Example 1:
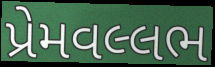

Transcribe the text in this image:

પ્રેમવલ્લભ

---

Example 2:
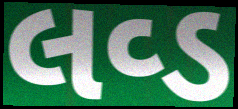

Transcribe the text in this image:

લવ્ડ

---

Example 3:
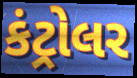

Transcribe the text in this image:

કંટ્રોલર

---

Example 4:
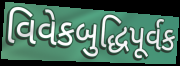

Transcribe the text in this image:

વિવેકબુદ્ધિપૂર્વક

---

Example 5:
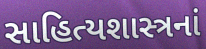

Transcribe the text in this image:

સાહિત્યશાસ્ત્રનાં